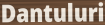
Dantuluri